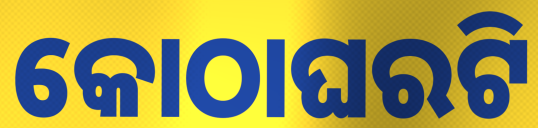
କୋଠାଘରଟି